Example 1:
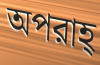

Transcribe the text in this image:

অপরাহ্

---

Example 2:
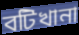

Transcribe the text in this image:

বটিখানা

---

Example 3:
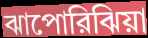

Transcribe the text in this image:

ঝাপোরিঝিয়া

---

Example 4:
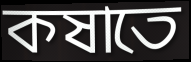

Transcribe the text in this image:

কষাতে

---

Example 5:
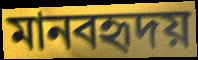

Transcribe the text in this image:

মানবহৃদয়